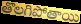
తొలగిపోతాయి